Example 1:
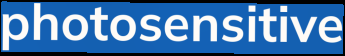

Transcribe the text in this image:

photosensitive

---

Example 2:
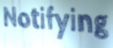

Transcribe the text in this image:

Notifying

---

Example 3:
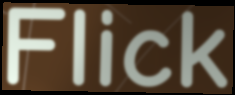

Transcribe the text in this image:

Flick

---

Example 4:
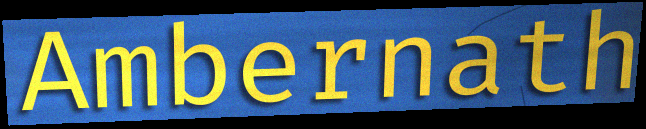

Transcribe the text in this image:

Ambernath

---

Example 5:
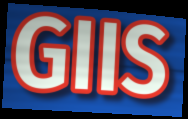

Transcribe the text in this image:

GIIS